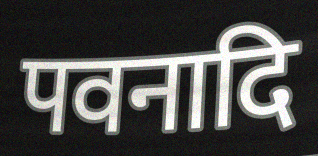
पवनादि